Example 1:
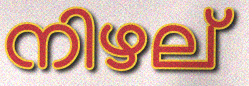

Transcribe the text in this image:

നിഴല്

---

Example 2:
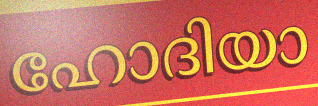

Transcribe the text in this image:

ഹോദിയാ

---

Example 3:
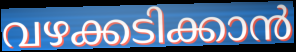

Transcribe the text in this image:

വഴക്കടിക്കാൻ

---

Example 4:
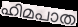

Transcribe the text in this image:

ഹിമപാത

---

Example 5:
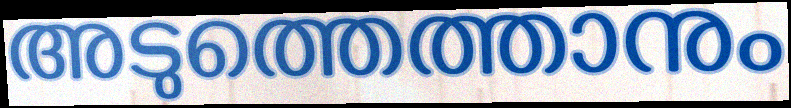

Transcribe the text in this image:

അടുത്തെത്താനും